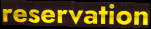
reservation